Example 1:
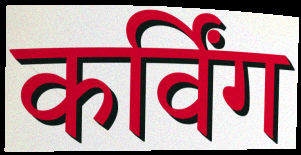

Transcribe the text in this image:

कर्विंग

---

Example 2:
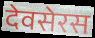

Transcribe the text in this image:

देवसेरस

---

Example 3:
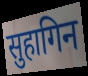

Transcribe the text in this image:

सुहागिन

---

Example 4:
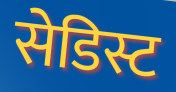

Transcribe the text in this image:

सेडिस्ट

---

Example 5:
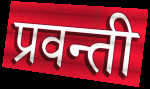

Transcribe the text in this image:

प्रवन्ती